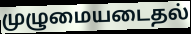
முழுமையடைதல்